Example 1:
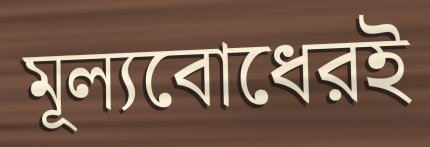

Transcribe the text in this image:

মূল্যবোধেরই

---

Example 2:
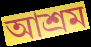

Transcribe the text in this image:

আশ্রম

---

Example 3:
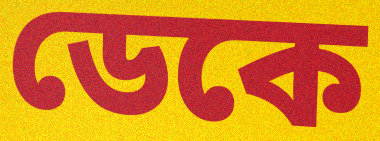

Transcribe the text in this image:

ডেকে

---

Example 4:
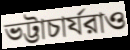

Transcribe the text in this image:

ভট্টাচার্যরাও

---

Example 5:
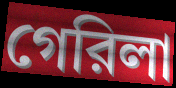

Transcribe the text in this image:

গেরিলা